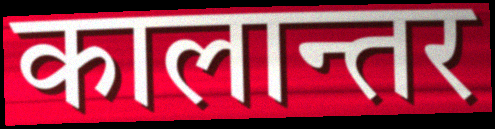
कालान्तर